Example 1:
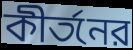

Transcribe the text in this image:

কীর্তনের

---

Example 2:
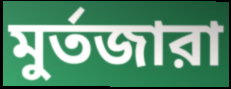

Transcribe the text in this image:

মুর্তজারা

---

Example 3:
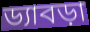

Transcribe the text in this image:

ড্যাবড়া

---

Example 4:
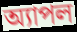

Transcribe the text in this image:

অ্যাপল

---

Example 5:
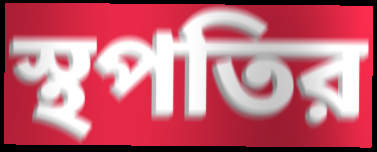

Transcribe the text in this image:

স্থপতির